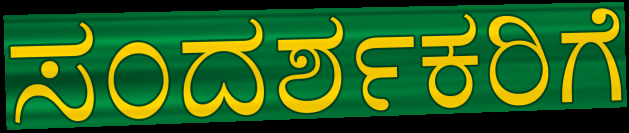
ಸಂದರ್ಶಕರಿಗೆ